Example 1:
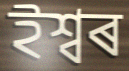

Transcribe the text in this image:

ইশ্বৰ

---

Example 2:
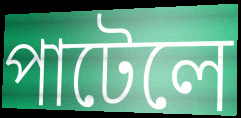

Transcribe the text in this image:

পাটেলে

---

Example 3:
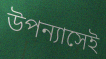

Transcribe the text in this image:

উপন্যাসেই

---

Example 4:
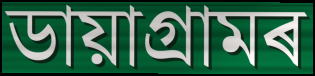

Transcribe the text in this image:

ডায়াগ্ৰামৰ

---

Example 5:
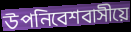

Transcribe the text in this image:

উপনিবেশবাসীয়ে